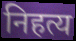
निहत्य